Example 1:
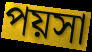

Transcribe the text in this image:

পয়সা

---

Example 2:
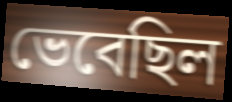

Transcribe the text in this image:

ভেবেছিল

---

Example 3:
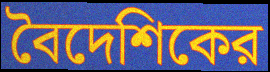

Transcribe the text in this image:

বৈদেশিকের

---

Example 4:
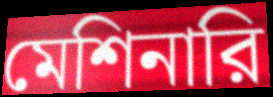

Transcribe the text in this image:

মেশিনারি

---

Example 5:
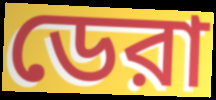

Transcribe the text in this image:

ডেরা